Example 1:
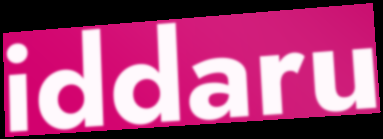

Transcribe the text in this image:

iddaru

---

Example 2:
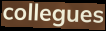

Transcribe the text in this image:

collegues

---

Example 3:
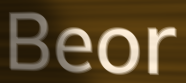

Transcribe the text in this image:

Beor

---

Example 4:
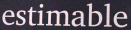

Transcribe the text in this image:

estimable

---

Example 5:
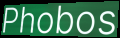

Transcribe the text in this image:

Phobos